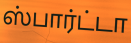
ஸ்பார்ட்டா